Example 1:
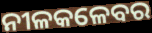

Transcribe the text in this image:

ନୀଳକଳେବର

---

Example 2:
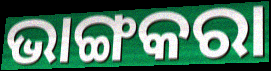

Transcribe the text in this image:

ଭାଙ୍ଗକରା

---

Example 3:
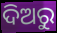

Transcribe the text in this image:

ଦିଅରୁ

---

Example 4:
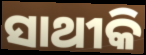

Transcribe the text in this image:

ସାଥୀକି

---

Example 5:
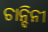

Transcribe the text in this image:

ଚାନ୍ଦିନୀ